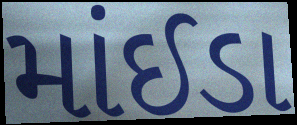
માંઈડા